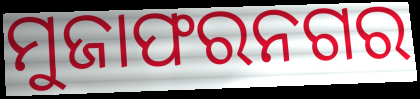
ମୁଜାଫରନଗର